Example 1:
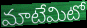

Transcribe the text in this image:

మాటేమిటో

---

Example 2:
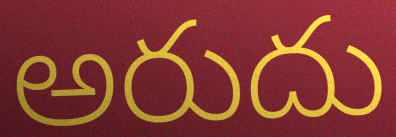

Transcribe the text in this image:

అరుదు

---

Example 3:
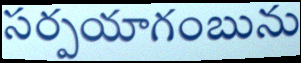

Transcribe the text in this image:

సర్పయాగంబును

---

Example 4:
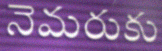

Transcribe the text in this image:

నెమరుకు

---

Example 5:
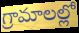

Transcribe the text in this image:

గ్రామాలల్లో